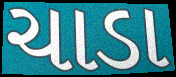
ચાડા